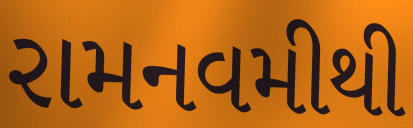
રામનવમીથી